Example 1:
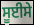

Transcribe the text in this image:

ਸੂਈਸੇ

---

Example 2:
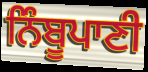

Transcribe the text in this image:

ਨਿੰਬੂਪਾਣੀ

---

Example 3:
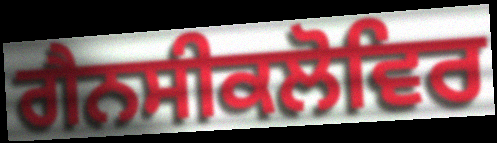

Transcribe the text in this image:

ਗੈਨਸੀਕਲੋਵਿਰ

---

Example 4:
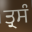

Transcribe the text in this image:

ਤ੍ਰਸੰ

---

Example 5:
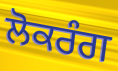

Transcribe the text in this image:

ਲੋਕਰੰਗ